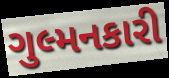
ગુલ્મનકારી